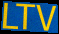
LTV